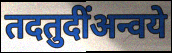
तदतुदींअन्वये